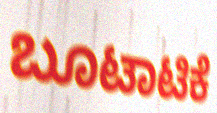
ಬೂಟಾಟಿಕೆ